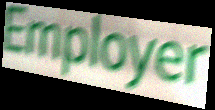
Employer